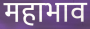
महाभाव